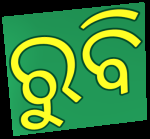
ରୁବି